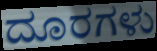
ದೂರಗಳು